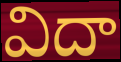
విదా